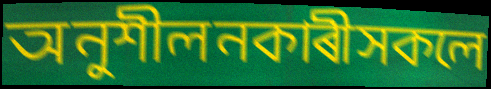
অনুশীলনকাৰীসকলে